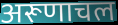
अरूणाचल